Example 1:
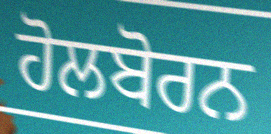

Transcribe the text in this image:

ਹੋਲਬੋਰਨ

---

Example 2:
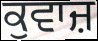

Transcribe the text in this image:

ਕੁਵਾਜ਼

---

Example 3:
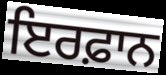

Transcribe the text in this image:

ਇਰਫ਼ਾਨ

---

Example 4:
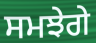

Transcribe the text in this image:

ਸਮਝੇਗੇ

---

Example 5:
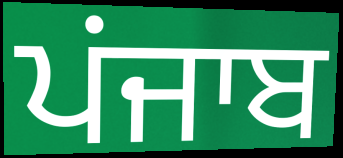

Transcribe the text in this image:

ਪਂਜਾਬ